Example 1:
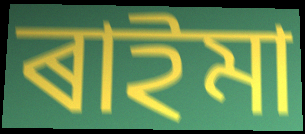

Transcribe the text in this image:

ৰাইমা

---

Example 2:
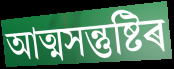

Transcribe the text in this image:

আত্মসন্তুষ্টিৰ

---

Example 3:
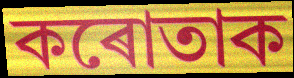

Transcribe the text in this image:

কৰোতাক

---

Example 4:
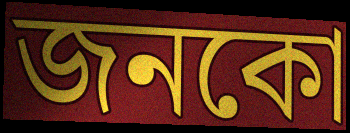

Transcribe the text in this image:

জনকো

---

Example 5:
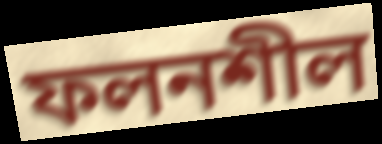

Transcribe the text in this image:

ফলনশীল